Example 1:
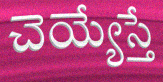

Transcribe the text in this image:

చెయ్యేస్తే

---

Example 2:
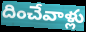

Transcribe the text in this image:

దించేవాళ్లు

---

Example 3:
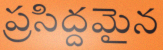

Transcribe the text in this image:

ప్రసిద్దమైన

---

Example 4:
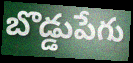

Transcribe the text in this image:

బొడ్డుపేగు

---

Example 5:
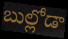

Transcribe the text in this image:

బుల్లోడా